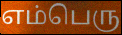
எம்பெரு